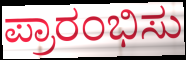
ಪ್ರಾರಂಭಿಸು